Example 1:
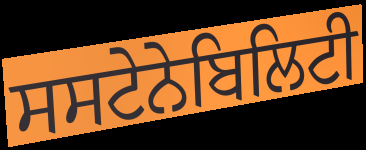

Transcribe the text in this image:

ਸਸਟੇਨੇਬਿਲਿਟੀ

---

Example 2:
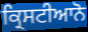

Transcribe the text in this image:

ਕ੍ਰਿਸਟੀਆਨੋ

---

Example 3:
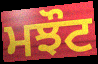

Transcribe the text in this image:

ਮਝੌਟ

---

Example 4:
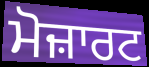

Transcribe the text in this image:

ਮੋਜ਼ਾਰਟ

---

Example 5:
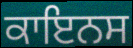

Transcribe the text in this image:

ਕਾਇਨਸ